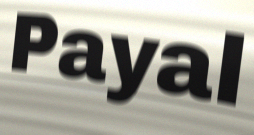
Payal